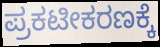
ಪ್ರಕಟೀಕರಣಕ್ಕೆ